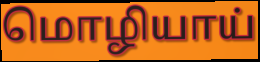
மொழியாய்